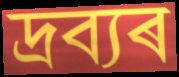
দ্ৰব্যৰ